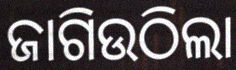
ଜାଗିଉଠିଲା